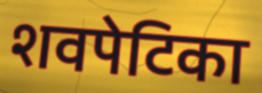
शवपेटिका